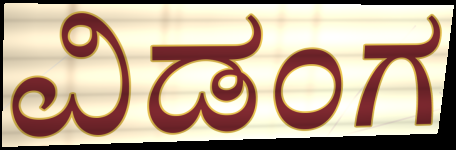
ವಿಡಂಗ